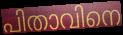
പിതാവിനെ